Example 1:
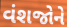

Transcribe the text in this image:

વંશજોને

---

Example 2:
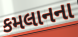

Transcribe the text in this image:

કમલાનના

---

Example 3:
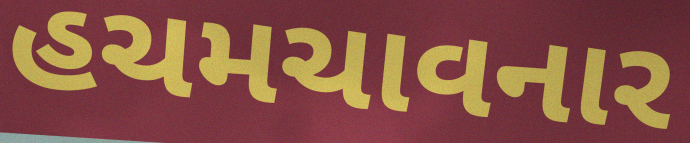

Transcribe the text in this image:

હચમચાવનાર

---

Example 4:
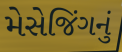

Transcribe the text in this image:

મેસેજિંગનું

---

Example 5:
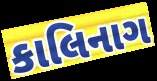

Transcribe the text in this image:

કાલિનાગ